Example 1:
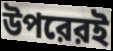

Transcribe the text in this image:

উপরেরই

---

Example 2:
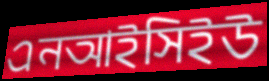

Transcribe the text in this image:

এনআইসিইউ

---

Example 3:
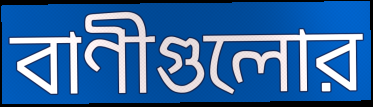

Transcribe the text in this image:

বাণীগুলোর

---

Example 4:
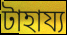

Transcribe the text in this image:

টাহায্য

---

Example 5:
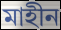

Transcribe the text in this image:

মাহীন